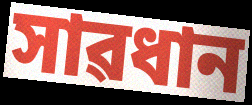
সাৱধান